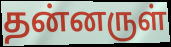
தன்னருள்